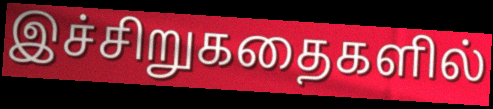
இச்சிறுகதைகளில்